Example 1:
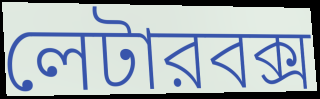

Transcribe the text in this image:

লেটারবক্স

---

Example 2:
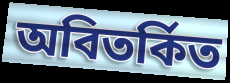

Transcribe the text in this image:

অবিতর্কিত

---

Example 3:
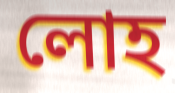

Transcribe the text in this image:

লোহ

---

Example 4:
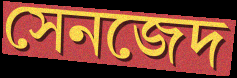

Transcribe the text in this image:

সেনজেদ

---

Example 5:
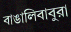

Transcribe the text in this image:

বাঙালিবাবুরা